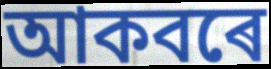
আকবৰে